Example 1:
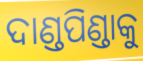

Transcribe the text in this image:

ଦାଣ୍ଡପିଣ୍ଡାକୁ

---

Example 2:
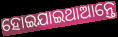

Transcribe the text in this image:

ହୋଇଯାଇଥାଆନ୍ତେ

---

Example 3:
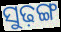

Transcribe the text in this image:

ସୁଢ଼ଙ୍ଗ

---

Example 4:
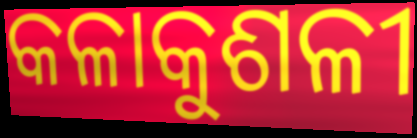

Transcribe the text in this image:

କଳାକୁଶଳୀ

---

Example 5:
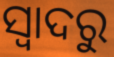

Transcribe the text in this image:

ସ୍ବାଦରୁ